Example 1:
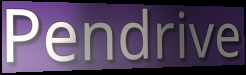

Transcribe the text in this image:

Pendrive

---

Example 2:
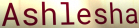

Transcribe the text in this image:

Ashlesha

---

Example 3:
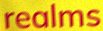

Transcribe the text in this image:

realms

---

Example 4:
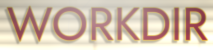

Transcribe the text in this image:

WORKDIR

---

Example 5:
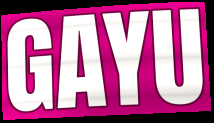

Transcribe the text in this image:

GAYU